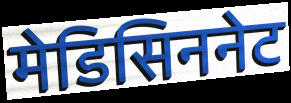
मेडिसिननेट